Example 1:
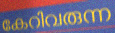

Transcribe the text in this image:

കേറിവരുന്ന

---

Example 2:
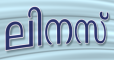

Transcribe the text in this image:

ലിനസ്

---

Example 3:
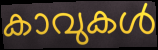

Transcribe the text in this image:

കാവുകൾ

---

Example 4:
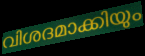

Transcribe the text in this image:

വിശദമാക്കിയും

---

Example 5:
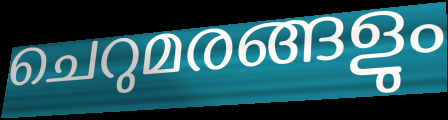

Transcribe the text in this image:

ചെറുമരങ്ങളും